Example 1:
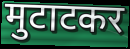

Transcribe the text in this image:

मुटाटकर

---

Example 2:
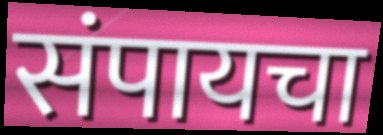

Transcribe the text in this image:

संपायचा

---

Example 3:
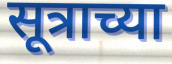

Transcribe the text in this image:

सूत्राच्या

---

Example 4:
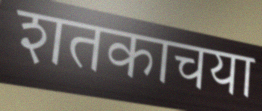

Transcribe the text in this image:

शतकाचया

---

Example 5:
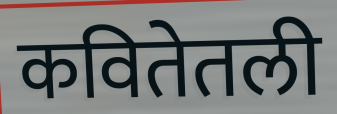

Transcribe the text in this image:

कवितेतली